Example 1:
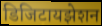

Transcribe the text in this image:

डिजिटायझेशन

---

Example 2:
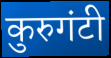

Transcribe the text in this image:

कुरुगंटी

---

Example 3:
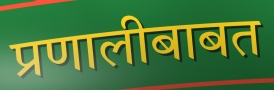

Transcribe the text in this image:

प्रणालीबाबत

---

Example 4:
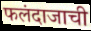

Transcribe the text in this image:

फलंदाजाची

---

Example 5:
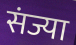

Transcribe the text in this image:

संज्या